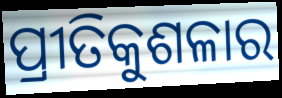
ପ୍ରୀତିକୁଶଳାର